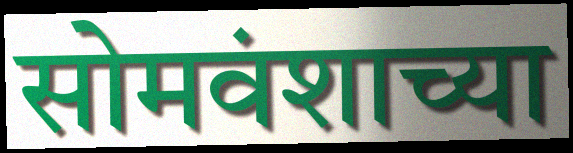
सोमवंशाच्या